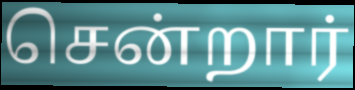
சென்றார்